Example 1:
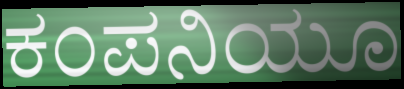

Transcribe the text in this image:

ಕಂಪನಿಯೂ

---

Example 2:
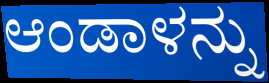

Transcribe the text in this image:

ಆಂಡಾಳನ್ನು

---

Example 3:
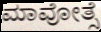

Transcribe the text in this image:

ಮಾವೋತ್ಸೆ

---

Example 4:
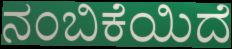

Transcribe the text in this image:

ನಂಬಿಕೆಯಿದೆ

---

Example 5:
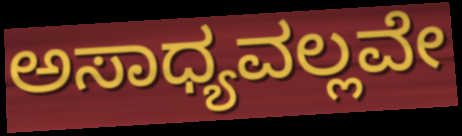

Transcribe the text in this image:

ಅಸಾಧ್ಯವಲ್ಲವೇ